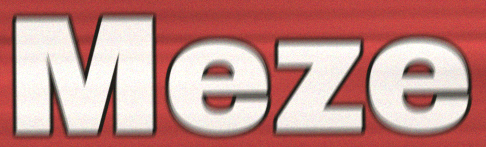
Meze